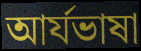
আর্যভাষা